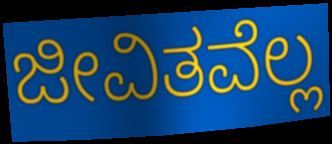
ಜೀವಿತವೆಲ್ಲ